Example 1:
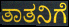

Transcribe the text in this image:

ತಾತನಿಗೆ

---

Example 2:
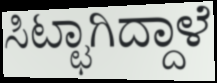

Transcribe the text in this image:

ಸಿಟ್ಟಾಗಿದ್ದಾಳೆ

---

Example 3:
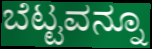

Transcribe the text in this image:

ಬೆಟ್ಟವನ್ನೂ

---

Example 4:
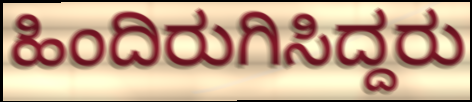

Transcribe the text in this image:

ಹಿಂದಿರುಗಿಸಿದ್ದರು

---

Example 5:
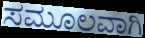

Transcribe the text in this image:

ಸಮೂಲವಾಗಿ